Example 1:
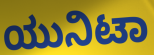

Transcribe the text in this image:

ಯುನಿಟಾ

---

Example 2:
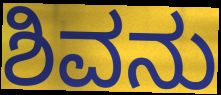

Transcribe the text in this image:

ಶಿವನು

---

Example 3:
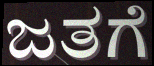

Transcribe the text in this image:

ಜತಗೆ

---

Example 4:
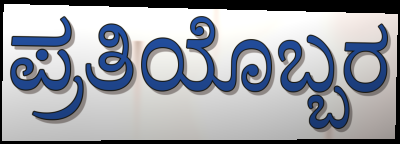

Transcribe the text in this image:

ಪ್ರತಿಯೊಬ್ಬರ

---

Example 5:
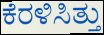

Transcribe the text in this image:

ಕೆರಳಿಸಿತ್ತು